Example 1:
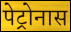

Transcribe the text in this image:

पेट्रोनास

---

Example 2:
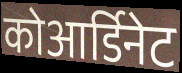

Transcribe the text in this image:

कोआर्डिनेट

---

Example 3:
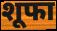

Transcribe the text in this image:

शूफा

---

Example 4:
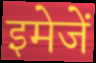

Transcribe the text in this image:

इमेजें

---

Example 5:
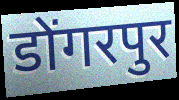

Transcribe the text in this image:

डोंगरपुर